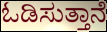
ಓಡಿಸುತ್ತಾನೆ